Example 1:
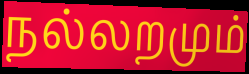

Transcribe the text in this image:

நல்லறமும்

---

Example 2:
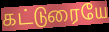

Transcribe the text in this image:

கட்டுரையே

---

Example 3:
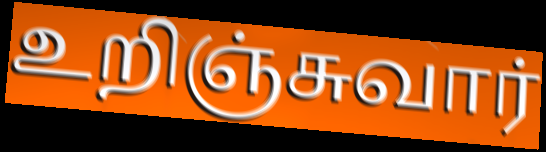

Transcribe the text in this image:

உறிஞ்சுவார்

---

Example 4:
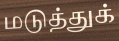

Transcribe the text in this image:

மடுத்துக்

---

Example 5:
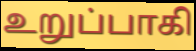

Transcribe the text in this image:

உறுப்பாகி